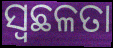
ସ୍ୱଛଳତା